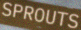
SPROUTS